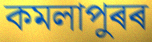
কমলাপুৰৰ